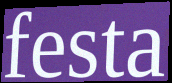
festa